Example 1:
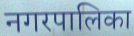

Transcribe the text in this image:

नगरपालिका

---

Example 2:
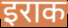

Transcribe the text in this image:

इराक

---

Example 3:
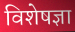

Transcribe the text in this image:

विशेषज्ञा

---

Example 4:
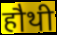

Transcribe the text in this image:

हौथी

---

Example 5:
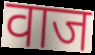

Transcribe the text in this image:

वाज